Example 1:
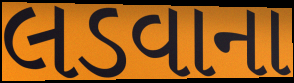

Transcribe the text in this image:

લડવાના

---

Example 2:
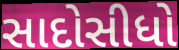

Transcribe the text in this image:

સાદોસીધો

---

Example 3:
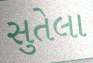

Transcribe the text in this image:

સુતેલા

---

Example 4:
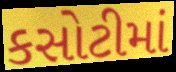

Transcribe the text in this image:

કસોટીમાં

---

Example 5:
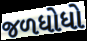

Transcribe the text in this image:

જળધોધો